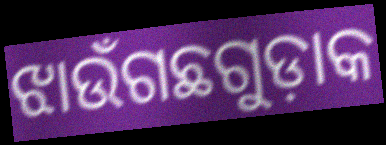
ଝାଉଁଗଛଗୁଡ଼ାକ